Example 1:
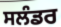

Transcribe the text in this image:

ਸਲੰਡਰ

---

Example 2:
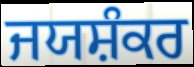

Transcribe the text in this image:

ਜਯਸ਼ੰਕਰ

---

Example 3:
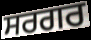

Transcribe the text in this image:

ਸਰਗਰ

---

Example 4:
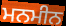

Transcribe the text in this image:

ਮਨਮੀਨ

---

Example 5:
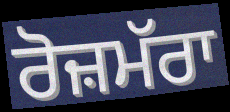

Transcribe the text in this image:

ਰੋਜ਼ਮੱਰਾ